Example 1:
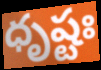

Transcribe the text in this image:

ధృష్టః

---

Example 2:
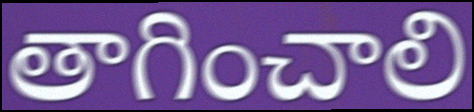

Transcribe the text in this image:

తాగించాలి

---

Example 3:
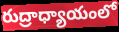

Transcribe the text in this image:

రుద్రాధ్యాయంలో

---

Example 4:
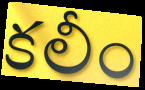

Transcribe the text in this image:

కలీం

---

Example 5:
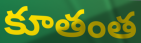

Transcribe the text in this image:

కూతంత